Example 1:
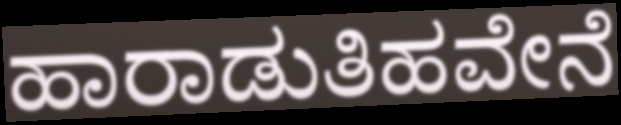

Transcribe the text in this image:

ಹಾರಾಡುತಿಹವೇನೆ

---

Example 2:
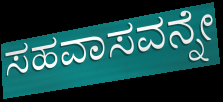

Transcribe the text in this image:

ಸಹವಾಸವನ್ನೇ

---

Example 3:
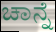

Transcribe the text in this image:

ಚಾನ್ನೆ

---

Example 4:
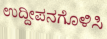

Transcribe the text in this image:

ಉದ್ದೀಪನಗೊಳಿಸಿ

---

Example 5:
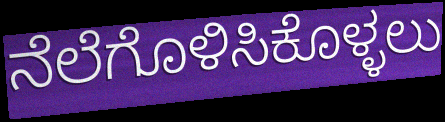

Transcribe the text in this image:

ನೆಲೆಗೊಳಿಸಿಕೊಳ್ಳಲು